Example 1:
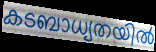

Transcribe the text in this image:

കടബാധ്യതയിൽ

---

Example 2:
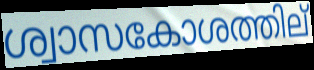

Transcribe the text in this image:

ശ്വാസകോശത്തില്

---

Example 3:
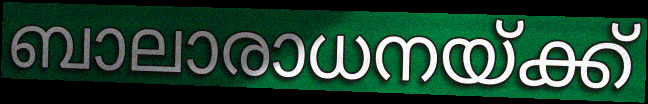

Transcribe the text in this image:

ബാലാരാധനയ്ക്ക്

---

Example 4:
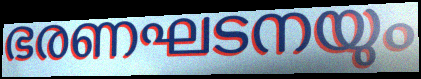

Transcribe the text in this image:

ഭരണഘടനയും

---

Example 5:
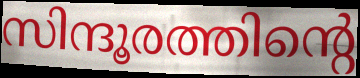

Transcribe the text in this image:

സിന്ദൂരത്തിന്റെ